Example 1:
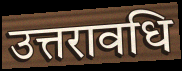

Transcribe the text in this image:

उत्तरावधि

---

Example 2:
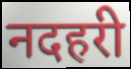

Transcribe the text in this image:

नदहरी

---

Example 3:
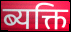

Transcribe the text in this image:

ब्यक्ति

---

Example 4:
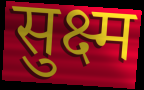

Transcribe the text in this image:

सुक्ष्म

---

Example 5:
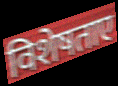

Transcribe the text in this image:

विशेषताए